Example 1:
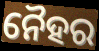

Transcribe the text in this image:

ନୈହର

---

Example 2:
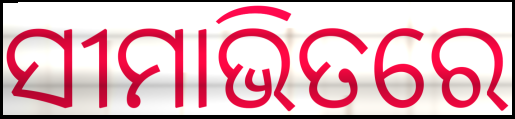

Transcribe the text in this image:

ସୀମାଭିତରେ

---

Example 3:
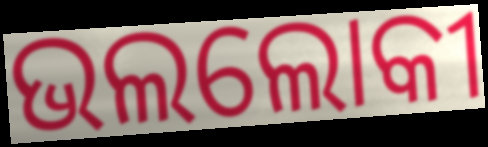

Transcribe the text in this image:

ଭଲଲୋକୀ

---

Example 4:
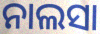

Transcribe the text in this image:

ନାଲସା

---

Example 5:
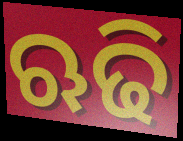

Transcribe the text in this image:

ଋଢି